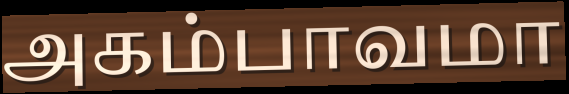
அகம்பாவமா